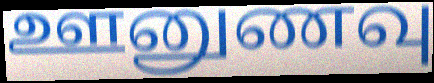
ஊனுணவு